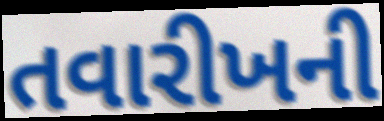
તવારીખની